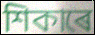
শিকাৰে